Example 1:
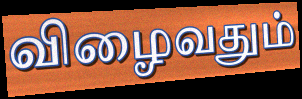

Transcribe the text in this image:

விழைவதும்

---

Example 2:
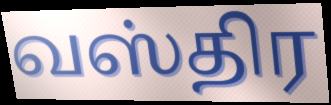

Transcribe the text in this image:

வஸ்திர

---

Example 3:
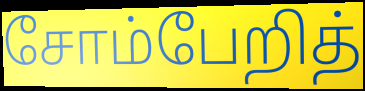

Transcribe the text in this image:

சோம்பேறித்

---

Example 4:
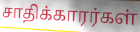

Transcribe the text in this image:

சாதிக்காரர்கள்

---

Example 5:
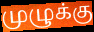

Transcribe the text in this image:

முழுக்கு